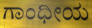
ಗಾಂಧೀಯ